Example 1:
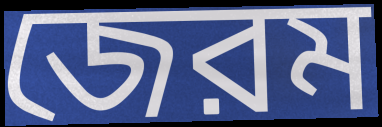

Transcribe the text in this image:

জেরম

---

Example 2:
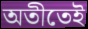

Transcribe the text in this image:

অতীতেই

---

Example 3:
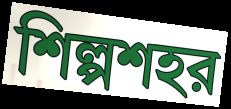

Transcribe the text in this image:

শিল্পশহর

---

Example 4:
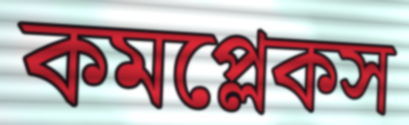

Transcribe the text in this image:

কমপ্লেকস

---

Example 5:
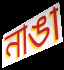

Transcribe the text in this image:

নাঙা